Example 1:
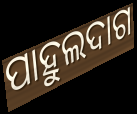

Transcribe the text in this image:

ପାହୁଲଦାଗ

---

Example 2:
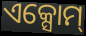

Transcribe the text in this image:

ଏକ୍ସୋମ୍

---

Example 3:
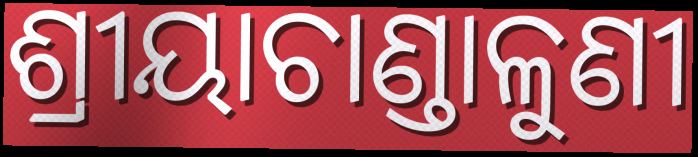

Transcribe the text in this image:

ଶ୍ରୀୟାଚାଣ୍ଡାଳୁଣୀ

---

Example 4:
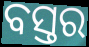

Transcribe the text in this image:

ବସ୍ତର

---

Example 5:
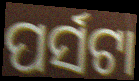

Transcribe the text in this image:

ପର୍ସଟା